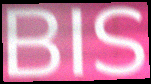
BIS